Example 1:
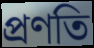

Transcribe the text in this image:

প্ৰণতি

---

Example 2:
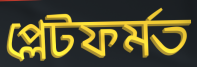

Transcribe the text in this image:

প্লেটফৰ্মত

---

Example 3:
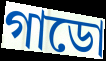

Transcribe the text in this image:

গাডো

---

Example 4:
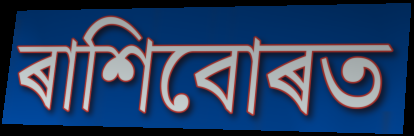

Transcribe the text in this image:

ৰাশিবোৰত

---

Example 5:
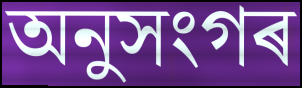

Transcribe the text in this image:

অনুসংগৰ